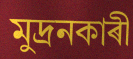
মুদ্ৰনকাৰী